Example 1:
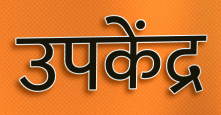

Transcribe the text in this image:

उपकेंद्र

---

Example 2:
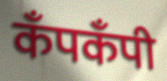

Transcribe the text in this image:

कँपकँपी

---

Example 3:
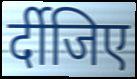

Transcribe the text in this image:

र्दीजिए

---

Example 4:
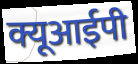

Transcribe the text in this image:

क्यूआईपी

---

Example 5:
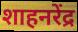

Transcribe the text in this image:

शाहनरेंद्र